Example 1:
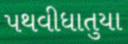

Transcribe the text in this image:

પથવીધાતુયા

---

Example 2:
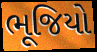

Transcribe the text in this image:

ભૂજિયો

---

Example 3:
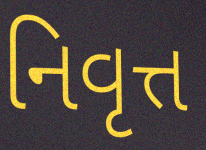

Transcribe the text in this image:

નિવૃત્ત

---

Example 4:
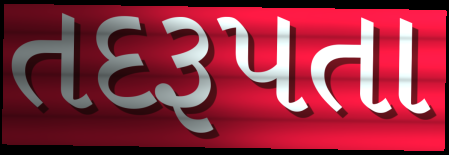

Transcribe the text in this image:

તદરૂપતા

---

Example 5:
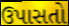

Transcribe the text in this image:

ઉપાસતો